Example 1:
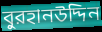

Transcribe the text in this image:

বুরহানউদ্দিন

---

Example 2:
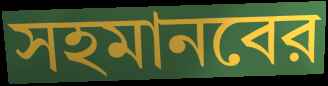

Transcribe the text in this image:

সহমানবের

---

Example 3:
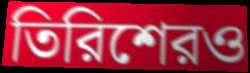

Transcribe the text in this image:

তিরিশেরও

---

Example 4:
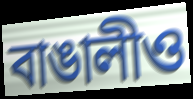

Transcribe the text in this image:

বাঙালীও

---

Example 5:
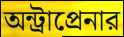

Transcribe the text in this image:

অন্ট্রাপ্রেনার